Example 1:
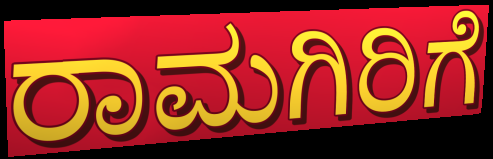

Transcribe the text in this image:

ರಾಮಗಿರಿಗೆ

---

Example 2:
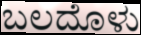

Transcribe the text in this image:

ಬಲದೊಳು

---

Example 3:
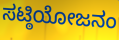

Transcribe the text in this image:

ಸಟ್ಠಿಯೋಜನಂ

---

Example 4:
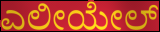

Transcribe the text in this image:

ಎಲೀಯೇಲ್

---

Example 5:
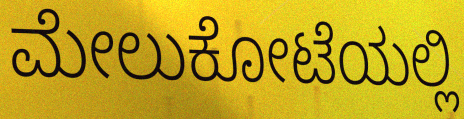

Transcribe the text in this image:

ಮೇಲುಕೋಟೆಯಲ್ಲಿ